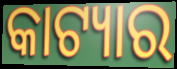
କାଟ୍ୟାର